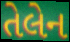
તેલેન